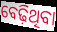
ବେଢ଼ିଥିବା